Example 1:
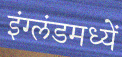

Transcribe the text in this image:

इंग्लंडमध्यें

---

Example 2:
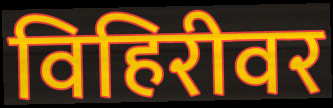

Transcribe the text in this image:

विहिरीवर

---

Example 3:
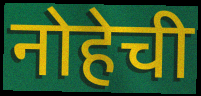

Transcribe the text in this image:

नोहेची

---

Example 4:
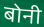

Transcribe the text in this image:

बोनी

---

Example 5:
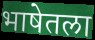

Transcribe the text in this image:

भाषेतला